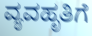
ವ್ಯವಹೃತಿಗೆ